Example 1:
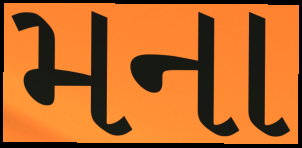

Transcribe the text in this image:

મના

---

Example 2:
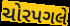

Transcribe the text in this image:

ચોરપગલે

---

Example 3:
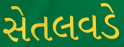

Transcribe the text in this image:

સેતલવડે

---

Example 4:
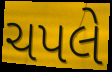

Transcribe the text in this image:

ચપલે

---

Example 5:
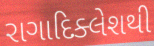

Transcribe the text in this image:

રાગાદિક્લેશથી